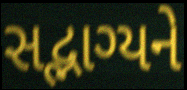
સદ્ભાગ્યને